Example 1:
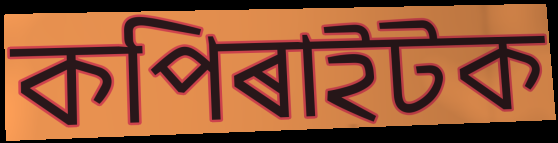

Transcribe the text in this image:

কপিৰাইটক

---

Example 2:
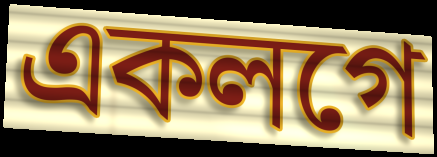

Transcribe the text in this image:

একলগে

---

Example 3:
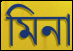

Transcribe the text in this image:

মিনা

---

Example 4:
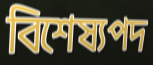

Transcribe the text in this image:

বিশেষ্যপদ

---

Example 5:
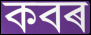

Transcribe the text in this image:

কবৰ